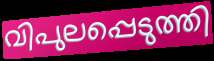
വിപുലപ്പെടുത്തി